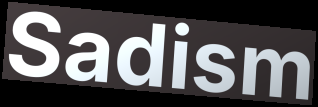
Sadism